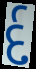
ર્દ